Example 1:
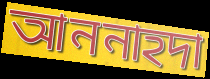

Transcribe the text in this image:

আননাহদা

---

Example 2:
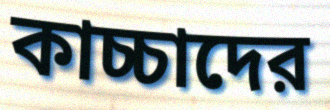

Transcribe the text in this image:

কাচ্চাদের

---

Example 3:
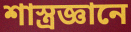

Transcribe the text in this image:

শাস্ত্রজ্ঞানে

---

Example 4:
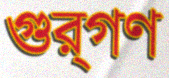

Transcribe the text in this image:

গুর্‌গণ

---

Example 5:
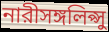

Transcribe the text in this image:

নারীসঙ্গলিপ্সু